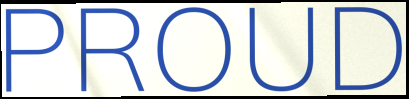
PROUD